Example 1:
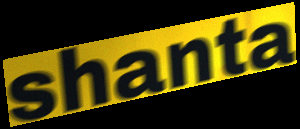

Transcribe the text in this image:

shanta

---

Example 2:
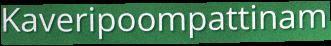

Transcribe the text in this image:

Kaveripoompattinam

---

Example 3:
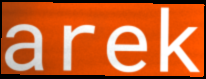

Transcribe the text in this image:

arek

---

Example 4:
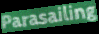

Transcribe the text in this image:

Parasailing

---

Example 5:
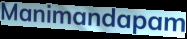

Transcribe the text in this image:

Manimandapam